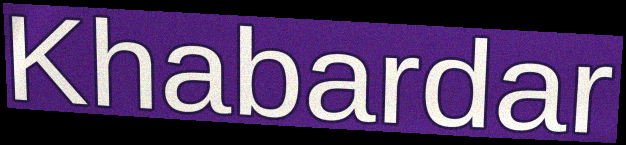
Khabardar